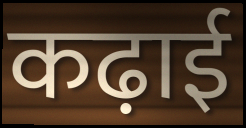
कढ़ाई